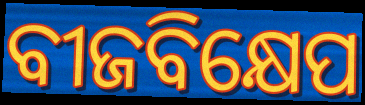
ବୀଜବିକ୍ଷେପ